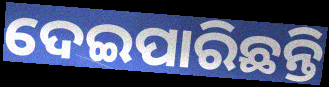
ଦେଇପାରିଛନ୍ତି